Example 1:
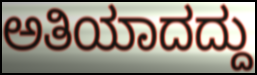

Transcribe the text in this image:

ಅತಿಯಾದದ್ದು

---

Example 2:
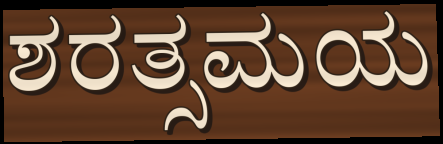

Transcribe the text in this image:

ಶರತ್ಸಮಯ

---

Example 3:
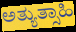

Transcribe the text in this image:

ಅತ್ಯುತ್ಸಾಹಿ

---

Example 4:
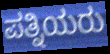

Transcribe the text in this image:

ಪತ್ನಿಯರು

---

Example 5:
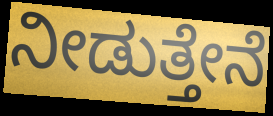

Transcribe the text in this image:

ನೀಡುತ್ತೇನೆ